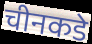
चीनकडे